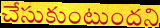
చేసుకుంటుందని